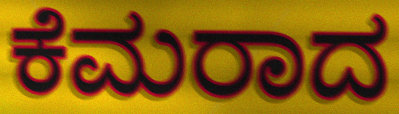
ಕೆಮರಾದ